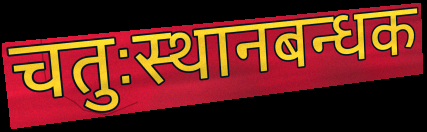
चतुःस्थानबन्धक